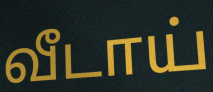
வீடாய்